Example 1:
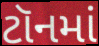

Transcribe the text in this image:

ટૉનમાં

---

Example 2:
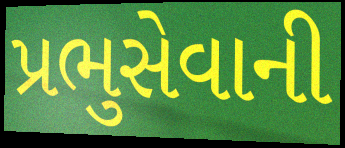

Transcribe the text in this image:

પ્રભુસેવાની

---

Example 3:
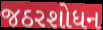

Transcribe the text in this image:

જઠરશોધન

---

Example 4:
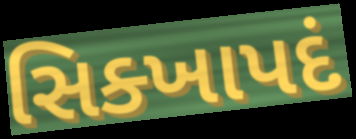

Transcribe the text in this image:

સિક્ખાપદં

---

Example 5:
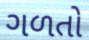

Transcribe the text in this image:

ગળતો